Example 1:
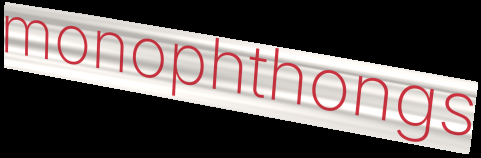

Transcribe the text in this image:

monophthongs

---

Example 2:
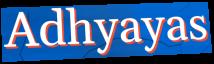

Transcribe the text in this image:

Adhyayas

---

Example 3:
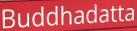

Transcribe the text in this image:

Buddhadatta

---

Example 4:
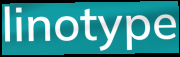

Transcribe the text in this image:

linotype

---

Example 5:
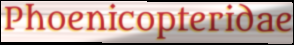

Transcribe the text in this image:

Phoenicopteridae